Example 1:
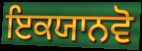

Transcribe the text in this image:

ਇਕਯਾਨਵੋ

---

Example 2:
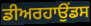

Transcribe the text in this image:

ਡੀਅਰਹਾਉਂਡਸ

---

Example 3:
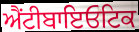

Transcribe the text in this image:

ਐਂਟੀਬਾਇਓਟਿਕ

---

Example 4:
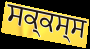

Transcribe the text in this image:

ਸਕ੍ਕਸ੍ਸ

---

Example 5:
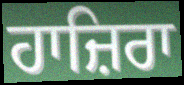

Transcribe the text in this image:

ਹਾਜ਼ਿਰਾ